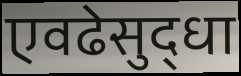
एवढेसुद्धा